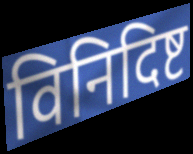
विनिदिष्ट